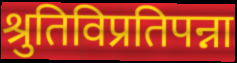
श्रुतिविप्रतिपन्ना